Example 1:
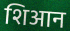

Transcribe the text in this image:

शिआन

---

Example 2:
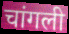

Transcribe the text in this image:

चांगली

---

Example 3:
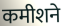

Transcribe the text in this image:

कमीशने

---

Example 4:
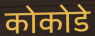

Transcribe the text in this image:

कोकोडे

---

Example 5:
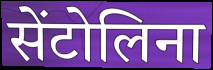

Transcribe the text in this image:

सेंटोलिना